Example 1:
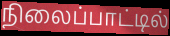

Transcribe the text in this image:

நிலைப்பாட்டில்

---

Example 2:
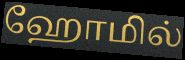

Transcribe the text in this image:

ஹோமில்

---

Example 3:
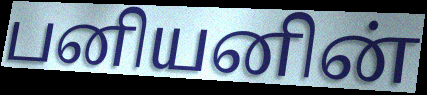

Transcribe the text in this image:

பனியனின்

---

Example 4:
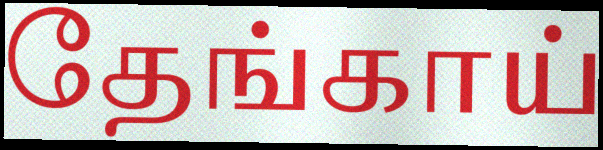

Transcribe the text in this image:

தேங்காய்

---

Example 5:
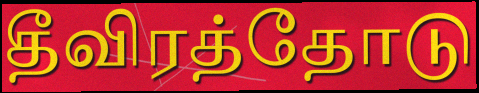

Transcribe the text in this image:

தீவிரத்தோடு